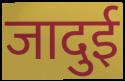
जादुई